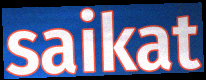
saikat